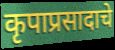
कृपाप्रसादाचे